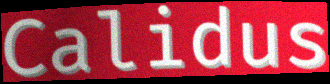
Calidus